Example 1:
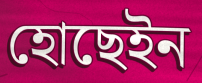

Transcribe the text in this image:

হোছেইন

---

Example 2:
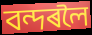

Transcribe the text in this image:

বন্দৰলৈ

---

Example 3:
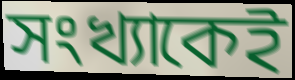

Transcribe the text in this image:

সংখ্যাকেই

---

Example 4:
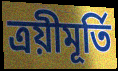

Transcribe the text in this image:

ত্ৰয়ীমূৰ্তি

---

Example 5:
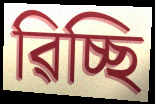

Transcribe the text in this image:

ৱিচ্ছি